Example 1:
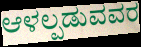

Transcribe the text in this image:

ಆಳಲ್ಪಡುವವರ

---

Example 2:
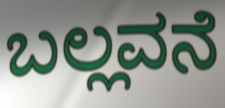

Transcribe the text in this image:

ಬಲ್ಲವನೆ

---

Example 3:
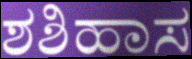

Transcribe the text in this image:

ಶಶಿಹಾಸ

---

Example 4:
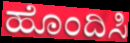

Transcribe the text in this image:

ಹೊಂದಿಸಿ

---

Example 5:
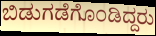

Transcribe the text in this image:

ಬಿಡುಗಡೆಗೊಂಡಿದ್ದರು